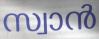
സ്വാൻ